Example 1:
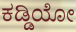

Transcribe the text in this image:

ಕಡ್ಡಿಯೋ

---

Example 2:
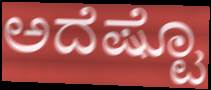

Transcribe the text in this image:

ಅದೆಷ್ಟೊ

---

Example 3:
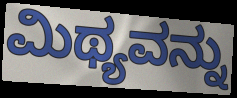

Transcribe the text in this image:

ಮಿಥ್ಯವನ್ನು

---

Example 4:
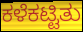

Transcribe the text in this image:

ಕಳೆಕಟ್ಟಿತು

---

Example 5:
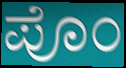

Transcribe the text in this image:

ಪೊಂ